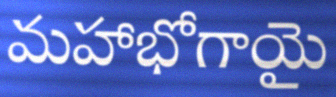
మహాభోగాయై